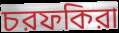
চরফকিরা